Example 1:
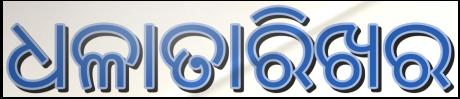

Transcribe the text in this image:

ଧଳାତାରିଖର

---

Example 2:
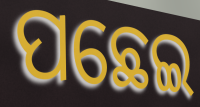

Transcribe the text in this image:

ପଛେଇ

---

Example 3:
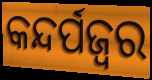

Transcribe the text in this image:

କନ୍ଦର୍ପଜ୍ବର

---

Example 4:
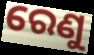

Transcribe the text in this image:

ରେଣୁ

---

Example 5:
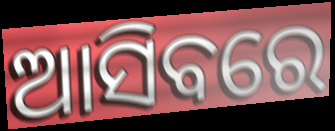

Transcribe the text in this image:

ଆସିବରେ